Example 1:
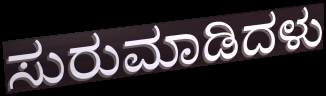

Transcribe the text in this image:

ಸುರುಮಾಡಿದಳು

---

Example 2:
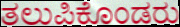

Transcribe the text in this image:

ತಲುಪಿಕೊಂಡರು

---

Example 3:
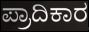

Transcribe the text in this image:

ಪ್ರಾದಿಕಾರ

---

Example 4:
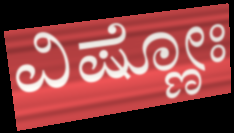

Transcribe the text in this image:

ವಿಷ್ಣೋಃ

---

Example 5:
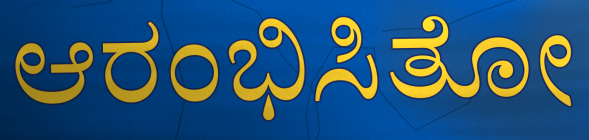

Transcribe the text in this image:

ಆರಂಭಿಸಿತೋ